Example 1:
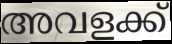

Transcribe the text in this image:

അവളക്ക്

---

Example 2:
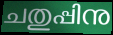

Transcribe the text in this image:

ചതുപ്പിനു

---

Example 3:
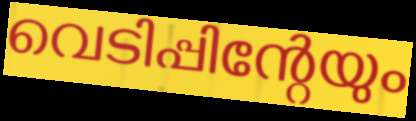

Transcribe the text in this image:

വെടിപ്പിന്റേയും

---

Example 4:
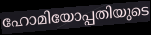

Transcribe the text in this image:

ഹോമിയോപ്പതിയുടെ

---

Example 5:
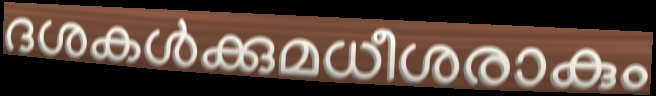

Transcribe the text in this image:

ദശകൾക്കുമധീശരാകും